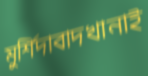
মুর্শিদাবাদখানাই